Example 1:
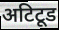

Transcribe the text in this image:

अटिटूड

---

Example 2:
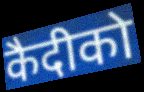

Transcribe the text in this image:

कैदीको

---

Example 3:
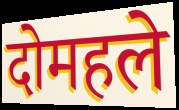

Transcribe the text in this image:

दोमहले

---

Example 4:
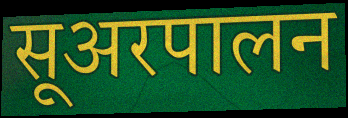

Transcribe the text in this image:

सूअरपालन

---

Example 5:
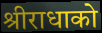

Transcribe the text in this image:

श्रीराधाको